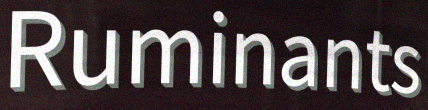
Ruminants